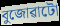
বুজোৱাটো